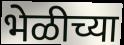
भेळीच्या